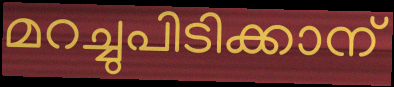
മറച്ചുപിടിക്കാന്